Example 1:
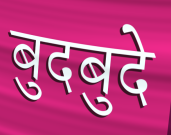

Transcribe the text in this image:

बुदबुदे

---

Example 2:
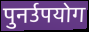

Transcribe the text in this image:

पुनर्उपयोग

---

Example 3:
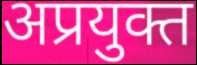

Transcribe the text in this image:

अप्रयुक्त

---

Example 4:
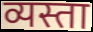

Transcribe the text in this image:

व्यस्ता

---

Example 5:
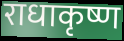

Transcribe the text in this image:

राधाकृष्ण